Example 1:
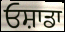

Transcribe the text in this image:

ਓਸ਼ਾਡਾ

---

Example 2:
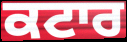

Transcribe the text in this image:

ਕਟਾਰ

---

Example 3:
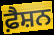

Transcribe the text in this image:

ਫ਼ੈਸ਼ਨ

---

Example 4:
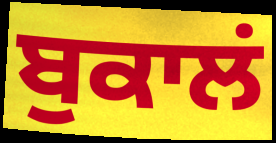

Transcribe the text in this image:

ਬੁਕਾਲਂ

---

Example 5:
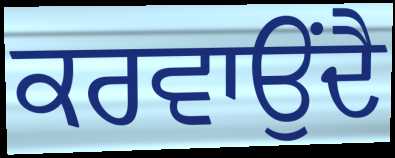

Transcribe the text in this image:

ਕਰਵਾਉਂਦੈ